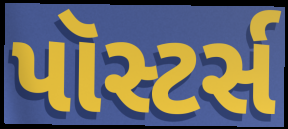
પૉસ્ટર્સ